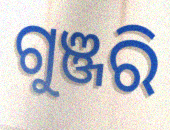
ଗୁଞ୍ଜରି